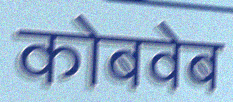
कोबवेब